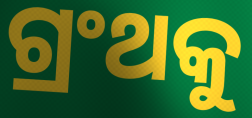
ଗ୍ରଂଥକୁ